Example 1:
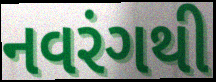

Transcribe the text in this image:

નવરંગથી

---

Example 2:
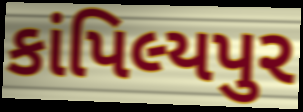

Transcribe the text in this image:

કાંપિલ્યપુર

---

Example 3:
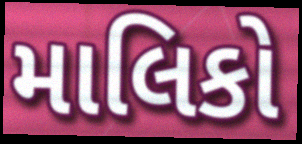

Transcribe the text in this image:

માલિકો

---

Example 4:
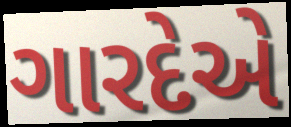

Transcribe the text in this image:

ગારદેએ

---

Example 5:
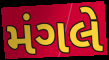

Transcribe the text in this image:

મંગલે